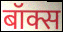
बॉक्स